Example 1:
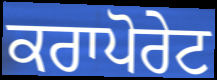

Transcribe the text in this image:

ਕਰਾਪੋਰੇਟ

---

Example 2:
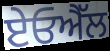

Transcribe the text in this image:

ਏਓਐੱਲ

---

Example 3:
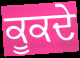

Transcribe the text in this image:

ਕੂਕਦੇ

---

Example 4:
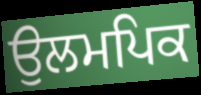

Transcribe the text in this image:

ਉਲਮਪਿਕ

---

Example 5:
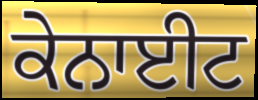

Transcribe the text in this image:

ਕੇਨਾਈਟ